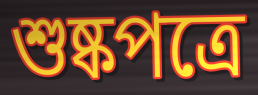
শুষ্কপত্রে